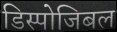
डिस्पोजिबल